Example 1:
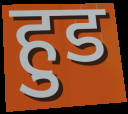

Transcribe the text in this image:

हुड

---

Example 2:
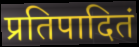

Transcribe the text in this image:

प्रतिपादितं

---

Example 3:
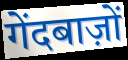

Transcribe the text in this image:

गेंदबाज़ों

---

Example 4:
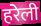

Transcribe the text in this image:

हरेली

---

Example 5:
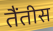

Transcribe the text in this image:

तैंतीस